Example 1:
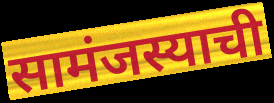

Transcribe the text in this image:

सामंजस्याची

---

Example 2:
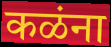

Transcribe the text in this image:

कळंना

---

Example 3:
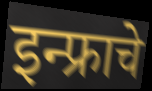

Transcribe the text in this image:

इन्फ्राचे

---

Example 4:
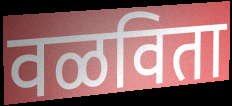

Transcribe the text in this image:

वळविता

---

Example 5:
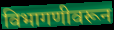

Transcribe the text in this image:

विभागणीवरून